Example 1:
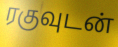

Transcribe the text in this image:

ரகுவுடன்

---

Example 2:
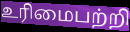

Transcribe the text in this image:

உரிமைபற்றி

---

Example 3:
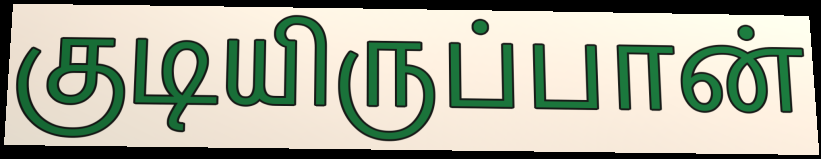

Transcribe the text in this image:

குடியிருப்பான்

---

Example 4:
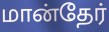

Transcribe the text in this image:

மான்தேர்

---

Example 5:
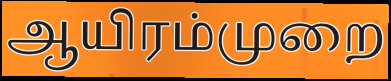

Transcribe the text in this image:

ஆயிரம்முறை